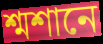
শ্মশানে